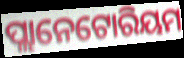
ପ୍ଲାନେଟୋରିୟମ